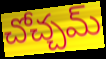
చోచ్చమ్